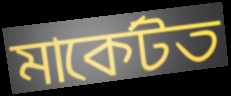
মাৰ্কেটত